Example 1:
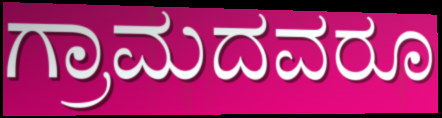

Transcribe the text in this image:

ಗ್ರಾಮದವರೂ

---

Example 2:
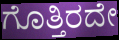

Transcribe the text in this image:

ಗೊತ್ತಿರದೇ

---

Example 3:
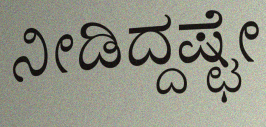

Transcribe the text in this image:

ನೀಡಿದ್ದಷ್ಟೇ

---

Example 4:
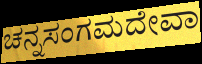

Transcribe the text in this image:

ಚನ್ನಸಂಗಮದೇವಾ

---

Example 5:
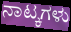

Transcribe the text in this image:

ನಾಟ್ಕಗಳು